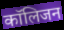
कॉलिजन